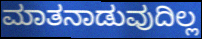
ಮಾತನಾಡುವುದಿಲ್ಲ